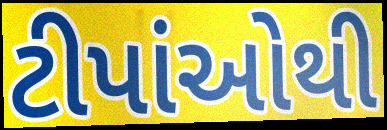
ટીપાંઓથી